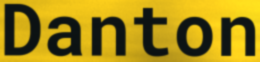
Danton